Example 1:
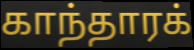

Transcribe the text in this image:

காந்தாரக்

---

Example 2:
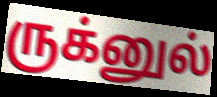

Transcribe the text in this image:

ருக்னுல்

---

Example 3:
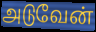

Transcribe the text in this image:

அடுவேன்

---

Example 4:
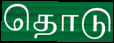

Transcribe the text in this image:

தொடு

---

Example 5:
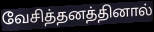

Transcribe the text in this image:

வேசித்தனத்தினால்